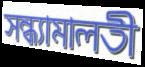
সন্ধ্যামালতী